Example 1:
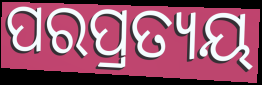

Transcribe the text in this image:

ପରପ୍ରତ୍ୟୟ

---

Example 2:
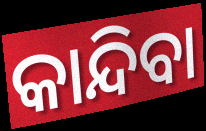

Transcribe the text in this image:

କାନ୍ଦିବା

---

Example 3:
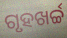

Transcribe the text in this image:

ଗୃହଖର୍ଚ୍ଚ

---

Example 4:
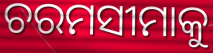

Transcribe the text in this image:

ଚରମସୀମାକୁ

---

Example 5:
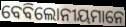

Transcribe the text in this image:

ବେବିଲୋନୀୟମାନେ